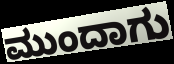
ಮುಂದಾಗು